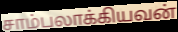
சாம்பலாக்கியவன்